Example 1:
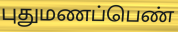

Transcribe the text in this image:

புதுமணப்பெண்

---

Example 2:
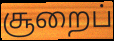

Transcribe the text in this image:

சூறைப்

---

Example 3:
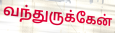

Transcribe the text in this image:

வந்துருக்கேன்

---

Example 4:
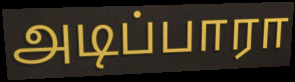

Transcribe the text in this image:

அடிப்பாரா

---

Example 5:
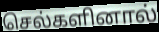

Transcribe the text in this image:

செல்களினால்